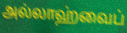
அல்லாஹ்வைப்